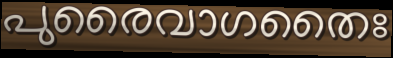
പുരൈവാഗതൈഃ